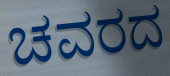
ಚವರದ